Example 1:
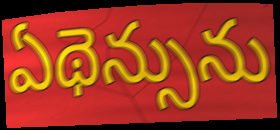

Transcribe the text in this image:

ఏథెన్సును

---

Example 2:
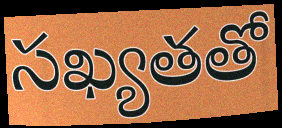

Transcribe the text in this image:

సఖ్యతతో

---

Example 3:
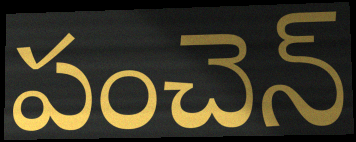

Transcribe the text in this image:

పంచెన్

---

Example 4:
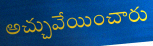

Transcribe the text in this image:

అచ్చువేయించారు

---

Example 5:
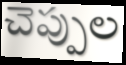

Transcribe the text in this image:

చెప్పుల